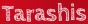
Tarashis